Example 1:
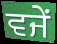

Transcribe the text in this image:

ਵਜੇਂ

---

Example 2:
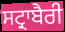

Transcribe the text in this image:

ਸਟ੍ਰਾਬੈਰੀ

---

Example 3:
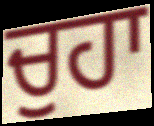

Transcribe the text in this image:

ਚੁਹਾ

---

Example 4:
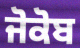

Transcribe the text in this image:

ਜੋਕੋਬ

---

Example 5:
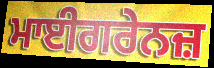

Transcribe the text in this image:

ਮਾਈਗਰੇਨਜ਼